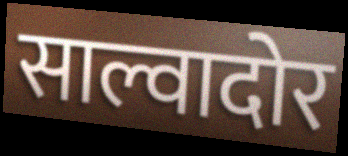
साल्वादोर